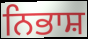
ਨਿਭਾਸ਼